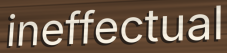
ineffectual